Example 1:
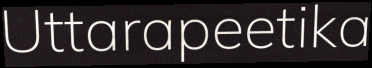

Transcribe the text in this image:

Uttarapeetika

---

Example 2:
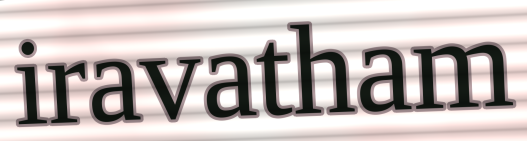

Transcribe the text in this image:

iravatham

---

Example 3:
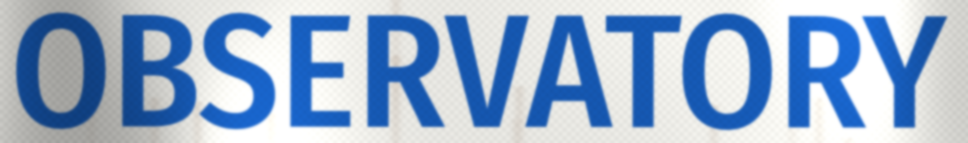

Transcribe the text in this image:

OBSERVATORY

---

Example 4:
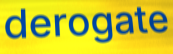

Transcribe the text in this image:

derogate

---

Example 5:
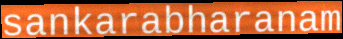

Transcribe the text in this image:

sankarabharanam